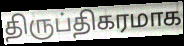
திருப்திகரமாக